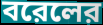
বরেলের